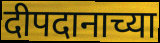
दीपदानाच्या